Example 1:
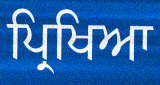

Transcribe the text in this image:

ਪ੍ਰਿਖਿਆ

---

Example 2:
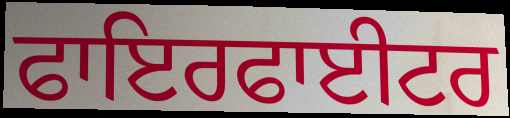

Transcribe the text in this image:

ਫਾਇਰਫਾਈਟਰ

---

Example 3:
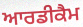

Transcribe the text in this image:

ਆਰਡੀਕੈਮ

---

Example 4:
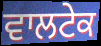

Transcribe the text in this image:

ਵਾਲਟੇਕ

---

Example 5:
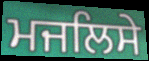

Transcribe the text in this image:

ਮਜਲਿਸੇ